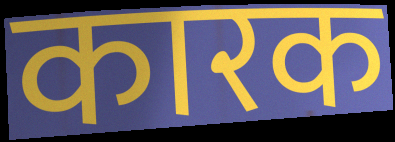
कारक